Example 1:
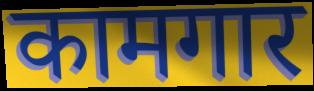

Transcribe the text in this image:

कामगार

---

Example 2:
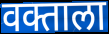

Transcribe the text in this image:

वक्ताला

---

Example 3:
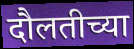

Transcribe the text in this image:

दौलतीच्या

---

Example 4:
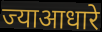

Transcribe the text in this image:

ज्याआधारे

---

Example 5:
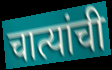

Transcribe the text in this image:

चात्यांची